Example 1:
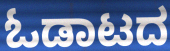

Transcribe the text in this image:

ಓಡಾಟದ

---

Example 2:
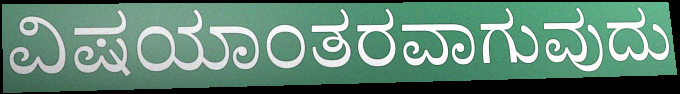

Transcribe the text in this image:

ವಿಷಯಾಂತರವಾಗುವುದು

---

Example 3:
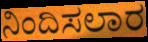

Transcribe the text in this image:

ನಿಂದಿಸಲಾರ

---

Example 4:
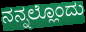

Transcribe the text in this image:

ನನ್ನಲ್ಲೊಂದು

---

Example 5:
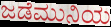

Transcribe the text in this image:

ಜಡೆಮುನಿಯ